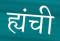
ह्यंची